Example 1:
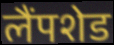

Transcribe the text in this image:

लैंपशेड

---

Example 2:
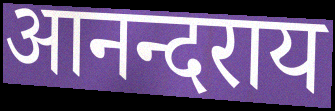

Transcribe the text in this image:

आनन्दराय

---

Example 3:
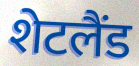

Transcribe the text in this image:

शेटलैंड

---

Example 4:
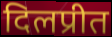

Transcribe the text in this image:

दिलप्रीत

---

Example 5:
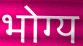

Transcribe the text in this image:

भोग्य